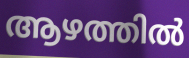
ആഴത്തിൽ